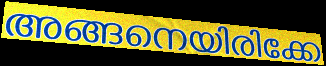
അങ്ങനെയിരിക്കേ